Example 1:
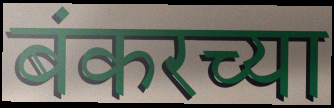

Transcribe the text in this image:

बंकरच्या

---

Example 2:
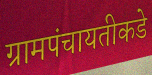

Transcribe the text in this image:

ग्रामपंचायतीकडे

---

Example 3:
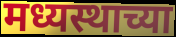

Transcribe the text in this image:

मध्यस्थाच्या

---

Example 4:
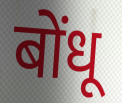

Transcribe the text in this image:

बोंधू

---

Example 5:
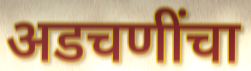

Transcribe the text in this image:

अडचणींचा